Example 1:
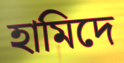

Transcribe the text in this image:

হামিদে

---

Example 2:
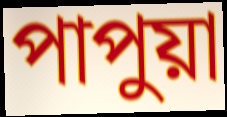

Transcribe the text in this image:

পাপুয়া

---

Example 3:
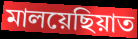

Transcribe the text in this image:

মালয়েছিয়াত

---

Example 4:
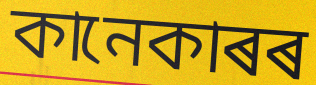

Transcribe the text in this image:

কানেকাৰৰ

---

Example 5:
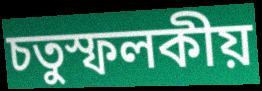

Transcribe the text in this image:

চতুস্ফলকীয়